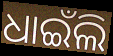
ଧାଇଁଲି